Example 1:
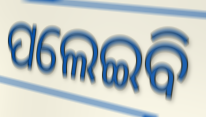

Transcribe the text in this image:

ପଲେଇବି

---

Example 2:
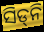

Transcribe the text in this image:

ସିଡ୍‍ନି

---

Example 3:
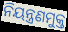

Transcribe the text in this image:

ନିୟନ୍ତ୍ରଣମୁକ୍ତ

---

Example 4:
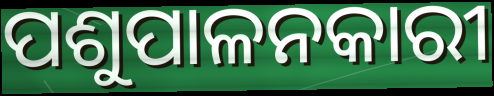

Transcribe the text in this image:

ପଶୁପାଳନକାରୀ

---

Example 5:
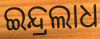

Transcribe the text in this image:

ଇନ୍ଦ୍ରଲାଧ